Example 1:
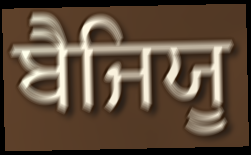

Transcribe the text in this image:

ਬੈਜਿਯੂ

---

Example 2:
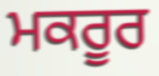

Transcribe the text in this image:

ਮਕਰੂਰ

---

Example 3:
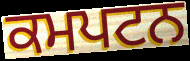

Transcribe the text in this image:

ਕਮਪਟਨ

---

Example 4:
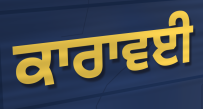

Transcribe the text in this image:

ਕਾਰਾਵਈ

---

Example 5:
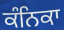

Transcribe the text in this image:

ਕੰਨਿਕਾ